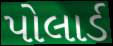
પોલાર્ડ